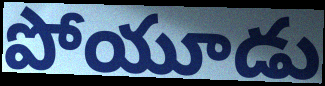
పోయూడు